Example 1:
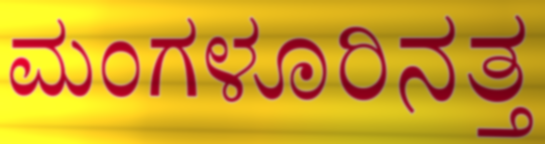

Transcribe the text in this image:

ಮಂಗಳೂರಿನತ್ತ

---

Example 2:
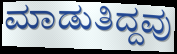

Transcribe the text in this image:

ಮಾಡುತಿದ್ದವು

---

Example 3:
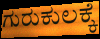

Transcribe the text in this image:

ಗುರುಕುಲಕ್ಕೆ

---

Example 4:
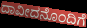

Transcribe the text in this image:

ದಾವೀದನೊಂದಿಗೆ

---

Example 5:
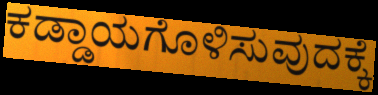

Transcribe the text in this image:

ಕಡ್ಡಾಯಗೊಳಿಸುವುದಕ್ಕೆ